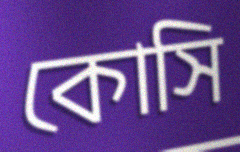
কোসি